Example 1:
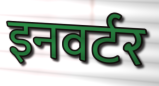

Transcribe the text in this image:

इनवर्टर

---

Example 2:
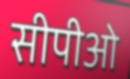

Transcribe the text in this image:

सीपीओ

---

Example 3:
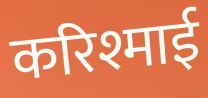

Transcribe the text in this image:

करिश्माई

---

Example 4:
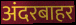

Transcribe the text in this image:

अंदरबाहर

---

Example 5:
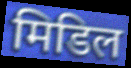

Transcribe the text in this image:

मिडिल